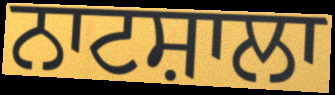
ਨਾਟਸ਼ਾਲਾ